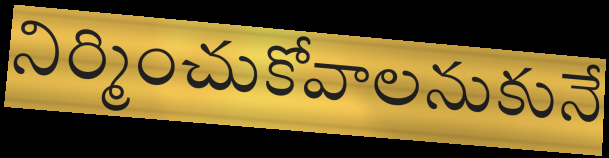
నిర్మించుకోవాలనుకునే